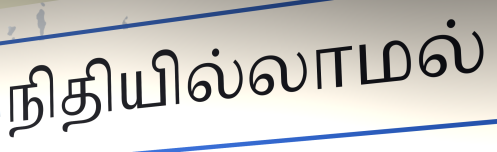
நிதியில்லாமல்